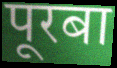
पूरबा